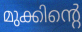
മുക്കിന്റെ